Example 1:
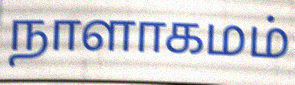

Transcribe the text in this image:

நாளாகமம்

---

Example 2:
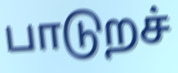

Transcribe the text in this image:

பாடுறச்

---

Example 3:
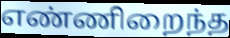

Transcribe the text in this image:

எண்ணிறைந்த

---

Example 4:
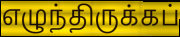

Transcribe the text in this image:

எழுந்திருக்கப்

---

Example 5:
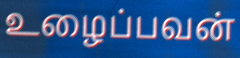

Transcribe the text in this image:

உழைப்பவன்